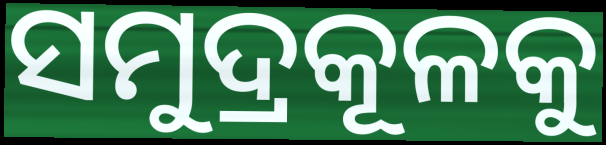
ସମୁଦ୍ରକୂଳକୁ